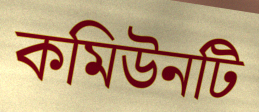
কমিউনটি